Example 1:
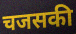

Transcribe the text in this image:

चजसकी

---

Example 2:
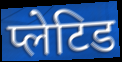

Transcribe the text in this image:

प्लेटिड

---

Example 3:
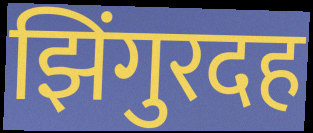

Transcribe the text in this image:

झिंगुरदह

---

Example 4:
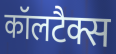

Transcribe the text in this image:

कॉलटैक्स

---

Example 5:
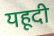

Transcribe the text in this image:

यहूदी